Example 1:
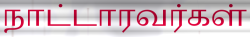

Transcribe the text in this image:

நாட்டாரவர்கள்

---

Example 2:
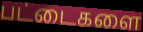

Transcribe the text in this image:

பட்டைகளை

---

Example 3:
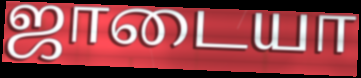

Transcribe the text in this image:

ஜாடையா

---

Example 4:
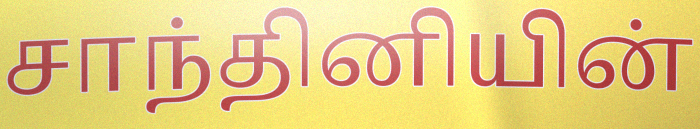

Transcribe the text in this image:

சாந்தினியின்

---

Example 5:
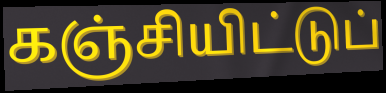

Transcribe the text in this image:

கஞ்சியிட்டுப்